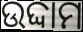
ଉଦ୍ଦାମ